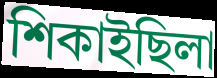
শিকাইছিলা